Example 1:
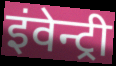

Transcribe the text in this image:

इंवेन्ट्री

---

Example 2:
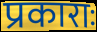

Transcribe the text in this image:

प्रकाराः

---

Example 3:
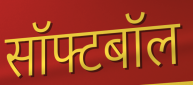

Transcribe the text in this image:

सॉफ्टबॉल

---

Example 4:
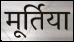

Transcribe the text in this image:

मूर्तिया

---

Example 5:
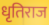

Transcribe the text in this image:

धृतिराज